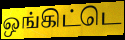
ஒங்கிட்டெ